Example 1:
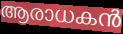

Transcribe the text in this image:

ആരാധകൻ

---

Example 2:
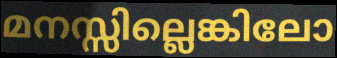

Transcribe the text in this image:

മനസ്സില്ലെങ്കിലോ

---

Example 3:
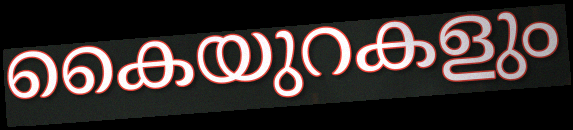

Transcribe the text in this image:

കൈയുറകളും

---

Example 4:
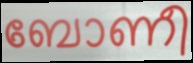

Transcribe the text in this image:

ബോണീ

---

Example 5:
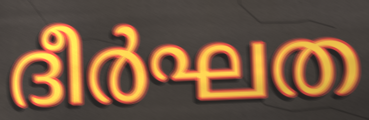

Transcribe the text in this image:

ദീർഘത